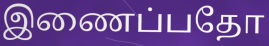
இணைப்பதோ